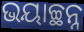
ଭୟାଚ୍ଛନ୍ନ